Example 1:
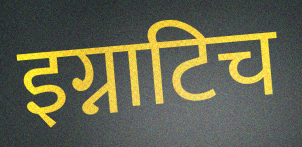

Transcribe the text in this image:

इग्नाटिच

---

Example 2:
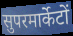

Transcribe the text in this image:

सुपरमार्केटों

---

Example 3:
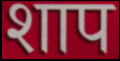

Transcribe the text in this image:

शाप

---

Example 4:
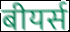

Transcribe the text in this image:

बीयर्स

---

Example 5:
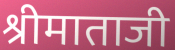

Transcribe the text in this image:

श्रीमाताजी